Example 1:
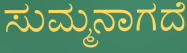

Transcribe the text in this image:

ಸುಮ್ಮನಾಗದೆ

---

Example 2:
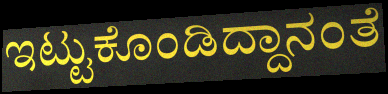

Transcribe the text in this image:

ಇಟ್ಟುಕೊಂಡಿದ್ದಾನಂತೆ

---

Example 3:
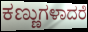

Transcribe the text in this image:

ಕಣ್ಣುಗಳಾದರೆ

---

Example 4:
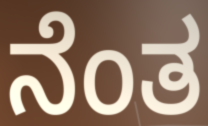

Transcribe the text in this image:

ನೆಂತ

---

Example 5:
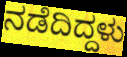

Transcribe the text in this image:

ನಡೆದಿದ್ದಳು